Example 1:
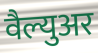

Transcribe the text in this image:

वैल्युअर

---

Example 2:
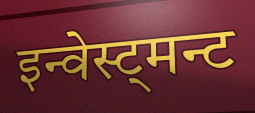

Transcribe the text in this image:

इन्वेस्ट्मन्ट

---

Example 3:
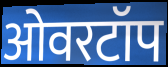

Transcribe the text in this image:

ओवरटॉप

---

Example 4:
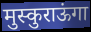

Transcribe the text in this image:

मुस्कुराऊंगा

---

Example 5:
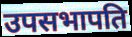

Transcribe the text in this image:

उपसभापति